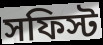
সফিস্ট